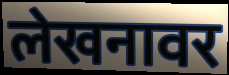
लेखनावर